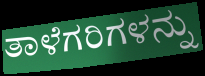
ತಾಳೆಗರಿಗಳನ್ನು